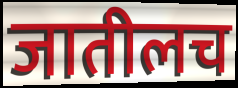
जातीलच